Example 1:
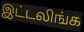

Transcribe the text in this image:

இட்டலிங்க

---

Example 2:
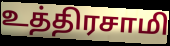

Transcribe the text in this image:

உத்திரசாமி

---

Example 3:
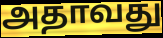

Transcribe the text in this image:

அதாவது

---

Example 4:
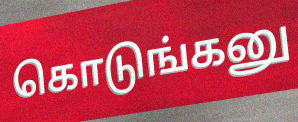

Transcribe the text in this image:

கொடுங்கனு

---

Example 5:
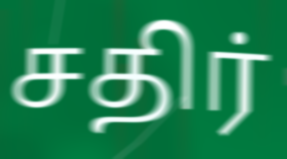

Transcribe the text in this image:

சதிர்